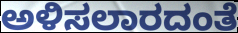
ಅಳಿಸಲಾರದಂತೆ